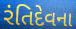
રંતિદેવના